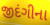
જીદંગીના